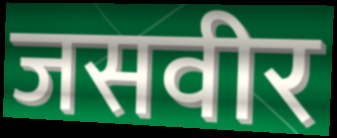
जसवीर